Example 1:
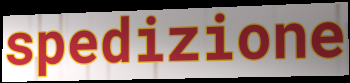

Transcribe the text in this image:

spedizione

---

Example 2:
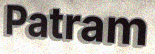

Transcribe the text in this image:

Patram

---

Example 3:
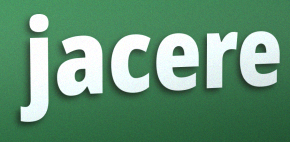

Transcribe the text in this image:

jacere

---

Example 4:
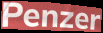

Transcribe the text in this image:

Penzer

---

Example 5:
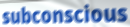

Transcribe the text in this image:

subconscious